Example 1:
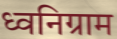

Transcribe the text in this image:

ध्वनिग्राम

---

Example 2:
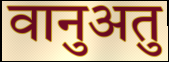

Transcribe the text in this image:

वानुअतु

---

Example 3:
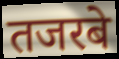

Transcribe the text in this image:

तजरबे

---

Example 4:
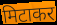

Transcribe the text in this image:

मिटाकर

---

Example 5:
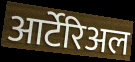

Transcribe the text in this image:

आर्टेरिअल